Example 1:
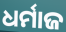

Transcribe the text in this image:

ଧର୍ମାଜ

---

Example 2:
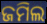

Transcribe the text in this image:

ଜମିଲ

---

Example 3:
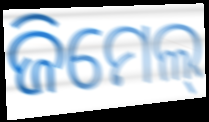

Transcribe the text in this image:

ଜିମେଲ୍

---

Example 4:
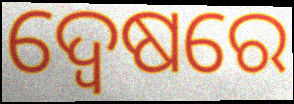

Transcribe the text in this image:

ଦ୍ୱେଷରେ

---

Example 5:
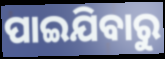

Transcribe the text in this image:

ପାଇଯିବାରୁ